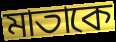
মাতাকে